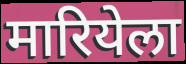
मारियेला